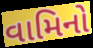
વામિનો